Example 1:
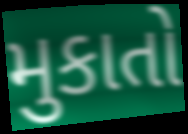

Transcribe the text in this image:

મુકાતો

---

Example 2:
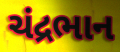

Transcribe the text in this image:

ચંદ્રભાન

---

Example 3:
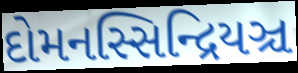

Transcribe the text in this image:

દોમનસ્સિન્દ્રિયઞ્ચ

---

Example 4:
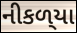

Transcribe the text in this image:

નીકળ્‌યા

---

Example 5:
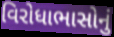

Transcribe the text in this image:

વિરોધાભાસોનું